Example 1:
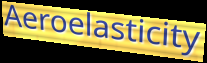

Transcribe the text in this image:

Aeroelasticity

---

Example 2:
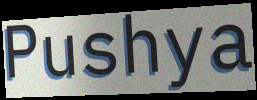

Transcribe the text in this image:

Pushya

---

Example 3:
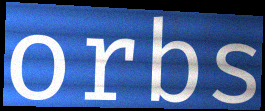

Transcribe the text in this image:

orbs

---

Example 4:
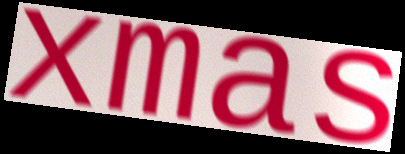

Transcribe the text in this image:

xmas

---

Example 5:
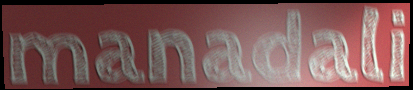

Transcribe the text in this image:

manadali